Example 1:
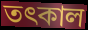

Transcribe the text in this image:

তৎকাল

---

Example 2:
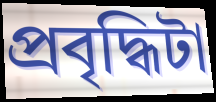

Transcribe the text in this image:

প্রবৃদ্ধিটা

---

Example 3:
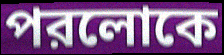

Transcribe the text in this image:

পরলোকে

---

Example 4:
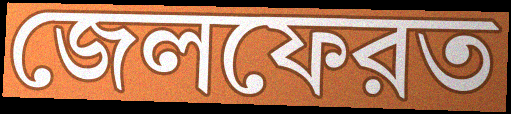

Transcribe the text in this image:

জেলফেরত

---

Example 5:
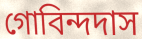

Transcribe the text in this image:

গোবিন্দদাস